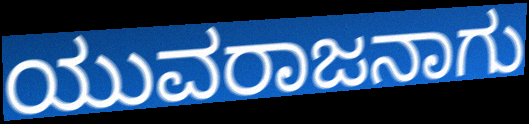
ಯುವರಾಜನಾಗು